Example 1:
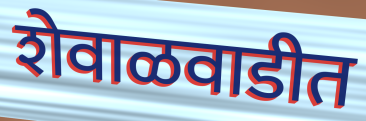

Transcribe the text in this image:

शेवाळवाडीत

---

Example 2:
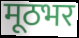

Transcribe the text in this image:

मूठभर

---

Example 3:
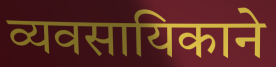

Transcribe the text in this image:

व्यवसायिकाने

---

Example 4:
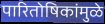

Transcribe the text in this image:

पारितोषिकांमुळे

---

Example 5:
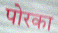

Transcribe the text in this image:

पोरका